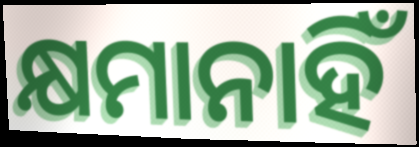
କ୍ଷମାନାହିଁ